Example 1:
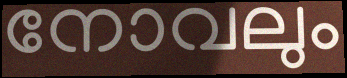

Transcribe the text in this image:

നോവലും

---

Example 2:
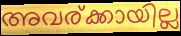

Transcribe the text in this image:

അവര്ക്കായില്ല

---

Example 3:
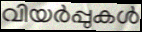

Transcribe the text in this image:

വിയർപ്പുകൾ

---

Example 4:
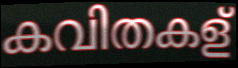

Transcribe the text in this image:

കവിതകള്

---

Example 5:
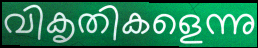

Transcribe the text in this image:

വികൃതികളെന്നു